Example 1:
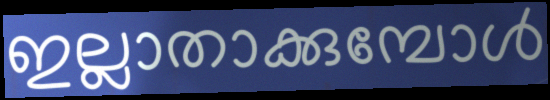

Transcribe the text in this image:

ഇല്ലാതാക്കുമ്പോൾ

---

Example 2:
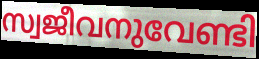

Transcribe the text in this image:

സ്വജീവനുവേണ്ടി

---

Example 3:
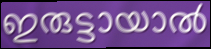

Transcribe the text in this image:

ഇരുട്ടായാൽ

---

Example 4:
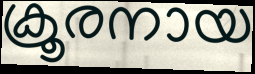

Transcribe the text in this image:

ക്രൂരനായ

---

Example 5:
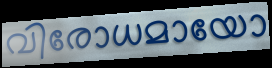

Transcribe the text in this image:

വിരോധമായോ